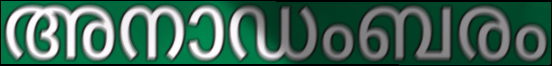
അനാഡംബരം